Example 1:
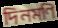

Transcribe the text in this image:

দিনমণি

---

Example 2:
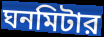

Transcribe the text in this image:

ঘনমিটার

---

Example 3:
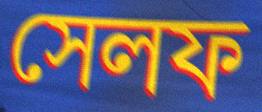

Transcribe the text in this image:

সেলফ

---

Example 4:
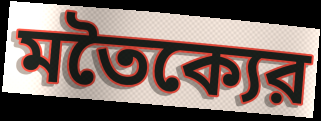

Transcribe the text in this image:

মতৈক্যের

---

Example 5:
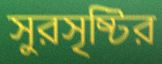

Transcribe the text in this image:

সুরসৃষ্টির